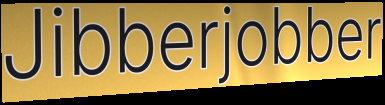
Jibberjobber